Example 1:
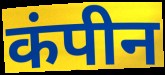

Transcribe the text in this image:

कंपीन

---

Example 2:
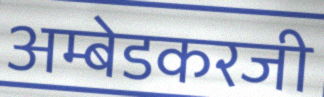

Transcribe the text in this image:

अम्बेडकरजी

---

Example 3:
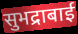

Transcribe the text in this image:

सुभद्राबाई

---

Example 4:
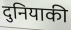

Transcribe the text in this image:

दुनियाकी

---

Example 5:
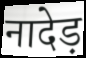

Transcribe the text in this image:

नादेड़